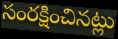
సంరక్షించినట్లు